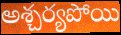
అశ్చర్యపోయి